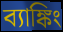
ব্যাঙ্কিং